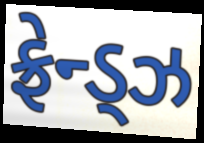
ફ્રેન્ડ્ઝ